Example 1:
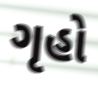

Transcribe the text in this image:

ગૃહો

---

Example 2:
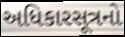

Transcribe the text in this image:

અધિકારસૂત્રનો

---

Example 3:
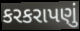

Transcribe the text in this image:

કરકરાપણું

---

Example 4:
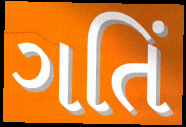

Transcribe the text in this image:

ગતિં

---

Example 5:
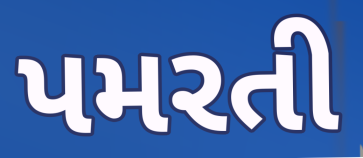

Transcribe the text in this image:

પમરતી